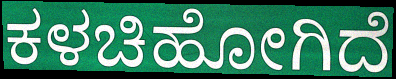
ಕಳಚಿಹೋಗಿದೆ